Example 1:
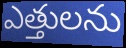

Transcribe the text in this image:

ఎత్తులను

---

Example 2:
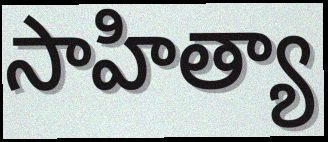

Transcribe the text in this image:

సాహిత్యా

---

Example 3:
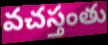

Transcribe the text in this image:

వచస్తంతు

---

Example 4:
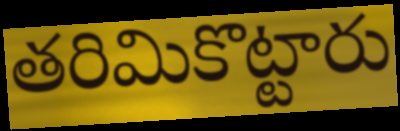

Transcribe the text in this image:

తరిమికొట్టారు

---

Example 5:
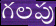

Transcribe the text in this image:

గలపు